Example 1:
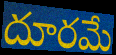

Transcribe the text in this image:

దూరమే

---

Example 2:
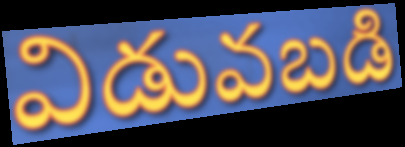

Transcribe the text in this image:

విడువబడి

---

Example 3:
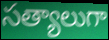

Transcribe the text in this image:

సత్యాలుగా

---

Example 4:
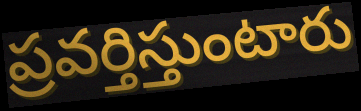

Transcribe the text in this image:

ప్రవర్తిస్తుంటారు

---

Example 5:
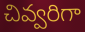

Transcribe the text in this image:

చివ్వరిగా